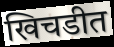
खिचडीत